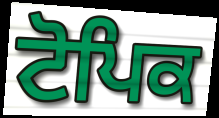
ਟੋਪਿਕ